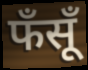
फँसूँ